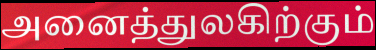
அனைத்துலகிற்கும்